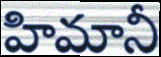
హిమానీ